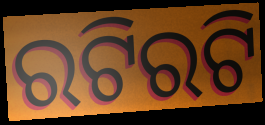
ରଟିରଟି